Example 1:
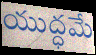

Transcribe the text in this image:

యుద్ధమే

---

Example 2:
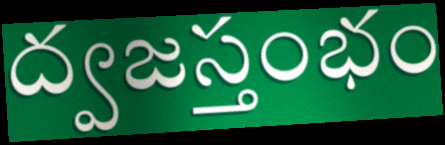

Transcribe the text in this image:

ద్వజస్తంభం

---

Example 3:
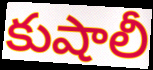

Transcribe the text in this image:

కుషాలీ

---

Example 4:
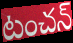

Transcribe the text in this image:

టంచన్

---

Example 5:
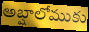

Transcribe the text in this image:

అబ్షాలోముకు